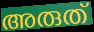
അരുത്